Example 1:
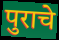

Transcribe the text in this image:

पुराचे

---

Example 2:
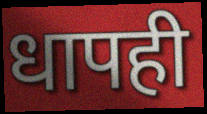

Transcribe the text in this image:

धापही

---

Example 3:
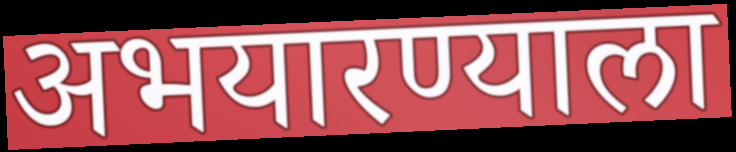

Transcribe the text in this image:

अभयारण्याला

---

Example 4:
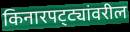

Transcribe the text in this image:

किनारपट्ट्यांवरील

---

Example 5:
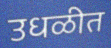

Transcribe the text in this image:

उधळीत